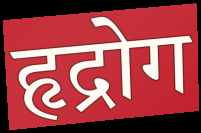
हृद्रोग